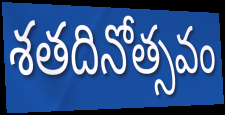
శతదినోత్సవం